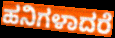
ಹನಿಗಳಾದರೆ